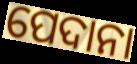
ପେଦାନା